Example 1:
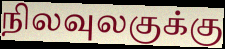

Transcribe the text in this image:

நிலவுலகுக்கு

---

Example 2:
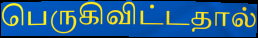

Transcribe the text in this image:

பெருகிவிட்டதால்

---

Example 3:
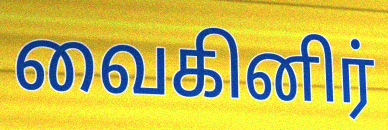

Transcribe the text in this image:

வைகினிர்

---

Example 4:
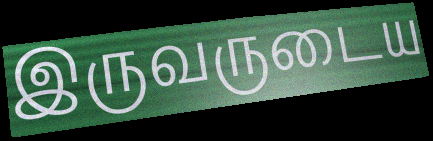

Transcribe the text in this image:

இருவருடைய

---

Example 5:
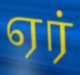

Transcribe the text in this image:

ஏர்